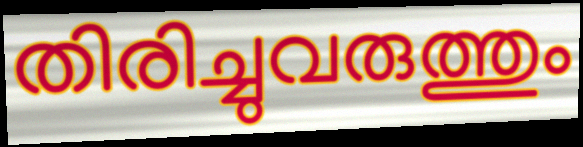
തിരിച്ചുവരുത്തും